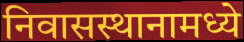
निवासस्थानामध्ये